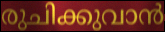
രുചിക്കുവാൻ